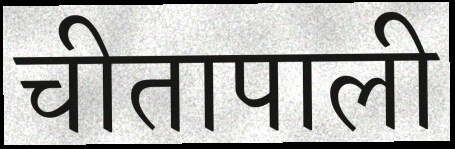
चीतापाली